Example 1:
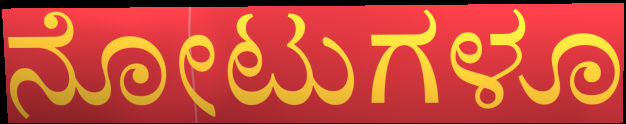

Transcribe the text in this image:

ನೋಟುಗಳೂ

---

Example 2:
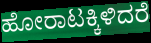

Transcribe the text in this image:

ಹೋರಾಟಕ್ಕಿಳಿದರೆ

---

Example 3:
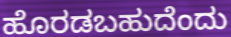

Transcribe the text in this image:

ಹೊರಡಬಹುದೆಂದು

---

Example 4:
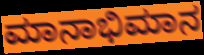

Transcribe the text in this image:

ಮಾನಾಭಿಮಾನ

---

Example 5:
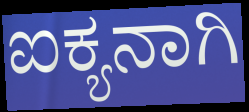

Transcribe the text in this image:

ಐಕ್ಯನಾಗಿ